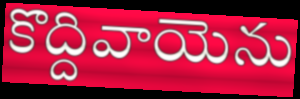
కొద్దివాయెను